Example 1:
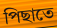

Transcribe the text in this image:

পিছাতে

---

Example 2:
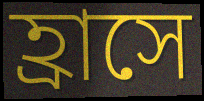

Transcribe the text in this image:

হ্রাসে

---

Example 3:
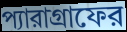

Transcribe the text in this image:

প্যারাগ্রাফের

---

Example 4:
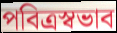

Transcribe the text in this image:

পবিত্রস্বভাব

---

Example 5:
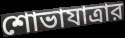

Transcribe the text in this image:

শোভাযাত্রার